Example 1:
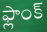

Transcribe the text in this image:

ఫ్లాంక్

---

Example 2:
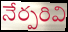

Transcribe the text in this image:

నేర్పరివి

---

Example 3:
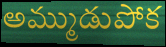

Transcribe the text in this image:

అమ్ముడుపోక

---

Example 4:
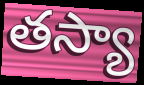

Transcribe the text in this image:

తస్యా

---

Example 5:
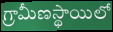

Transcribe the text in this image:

గ్రామీణస్థాయిలో